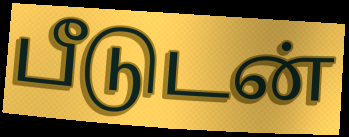
பீடுடன்